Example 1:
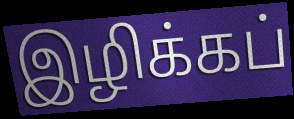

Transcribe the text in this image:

இழிக்கப்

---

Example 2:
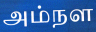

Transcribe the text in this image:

அம்நள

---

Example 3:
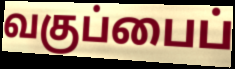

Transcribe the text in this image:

வகுப்பைப்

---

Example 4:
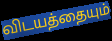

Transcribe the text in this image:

விடயத்தையும்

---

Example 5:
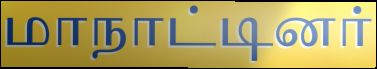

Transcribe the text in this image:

மாநாட்டினர்